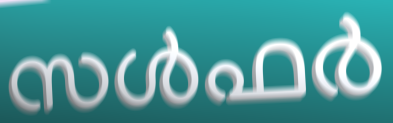
സൾഫർ